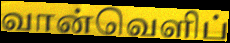
வான்வெளிப்